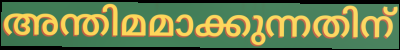
അന്തിമമാക്കുന്നതിന്